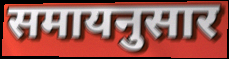
समायनुसार